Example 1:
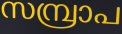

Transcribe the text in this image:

സമ്പ്രാപ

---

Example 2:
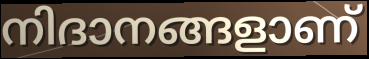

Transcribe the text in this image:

നിദാനങ്ങളാണ്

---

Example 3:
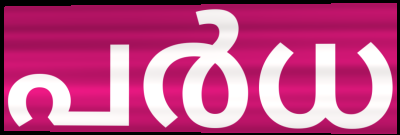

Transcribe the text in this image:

പർധ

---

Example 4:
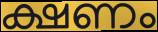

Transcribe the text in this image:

ക്ഷണം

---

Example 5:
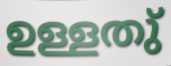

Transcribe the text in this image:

ഉള്ളതു്